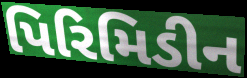
પિરિમિડીન